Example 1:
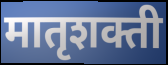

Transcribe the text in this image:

मातृशक्ती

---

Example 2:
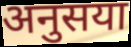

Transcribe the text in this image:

अनुसया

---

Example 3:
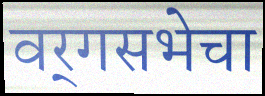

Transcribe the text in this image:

वर्गसभेचा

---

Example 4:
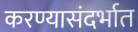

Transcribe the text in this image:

करण्यासंदर्भात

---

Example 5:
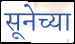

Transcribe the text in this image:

सूनेच्या